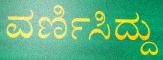
ವರ್ಣಿಸಿದ್ದು